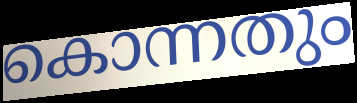
കൊന്നതും